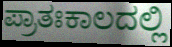
ಪ್ರಾತಃಕಾಲದಲ್ಲಿ